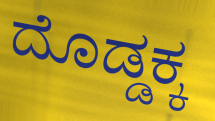
ದೊಡ್ಡಕ್ಕ